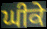
ਘੀਕੇ